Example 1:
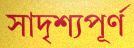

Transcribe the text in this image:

সাদৃশ্যপূৰ্ণ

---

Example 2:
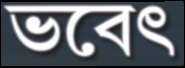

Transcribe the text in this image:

ভবেৎ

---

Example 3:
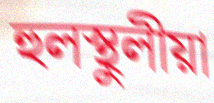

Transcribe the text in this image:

হুলস্থুলীয়া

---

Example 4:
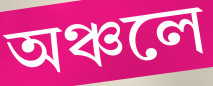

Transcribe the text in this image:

অঞ্চলে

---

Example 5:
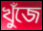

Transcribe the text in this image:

খুঁজে